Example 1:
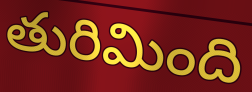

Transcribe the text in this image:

తురిమింది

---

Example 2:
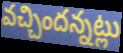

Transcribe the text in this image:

వచ్చిందన్నట్లు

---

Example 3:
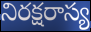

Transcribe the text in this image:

నిరక్షరాస్య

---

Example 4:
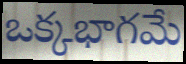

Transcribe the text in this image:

ఒక్కభాగమే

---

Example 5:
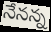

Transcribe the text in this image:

నేనన్న